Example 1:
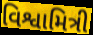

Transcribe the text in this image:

વિશ્વામિત્રી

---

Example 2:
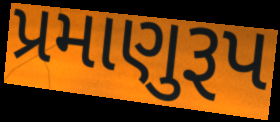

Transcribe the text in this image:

પ્રમાણુરૂપ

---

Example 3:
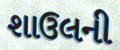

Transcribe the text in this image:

શાઉલની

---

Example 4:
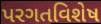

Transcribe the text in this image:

પરગતવિશેષ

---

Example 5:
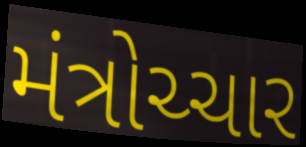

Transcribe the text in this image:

મંત્રોચ્ચાર